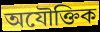
অযৌক্তিক